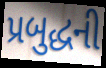
પ્રબુદ્ધની